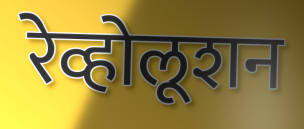
रेव्होलूशन